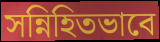
সন্নিহিতভাবে